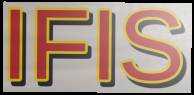
IFIS